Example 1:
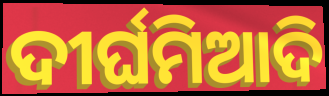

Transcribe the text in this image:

ଦୀର୍ଘମିଆଦି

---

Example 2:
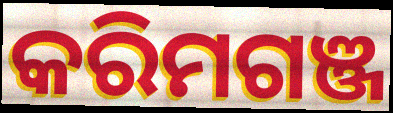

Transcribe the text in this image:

କରିମଗଞ୍ଜ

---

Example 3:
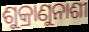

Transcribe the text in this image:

ଶୁକ୍ରାଣୁନାଶୀ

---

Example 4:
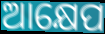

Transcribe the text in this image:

ଆକ୍ଷେପ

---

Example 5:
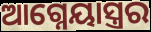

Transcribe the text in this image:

ଆଗ୍ନେୟାସ୍ତ୍ରର